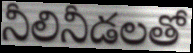
నీలినీడలతో